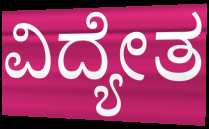
ವಿದ್ಯೇತ